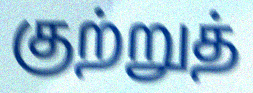
குற்றுத்